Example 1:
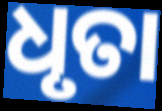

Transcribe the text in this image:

ଧୃତା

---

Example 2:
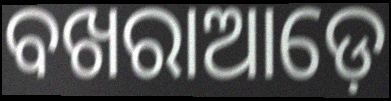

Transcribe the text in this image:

ବଖରାଆଡ଼େ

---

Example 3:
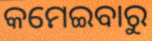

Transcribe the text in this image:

କମେଇବାରୁ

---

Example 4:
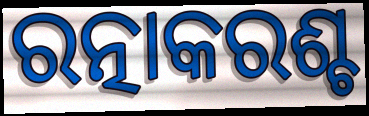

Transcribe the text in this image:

ରତ୍ନାକରଶ୍ଚ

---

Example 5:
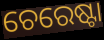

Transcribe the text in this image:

ଚେରେଷ୍ଟା